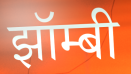
झॉम्बी